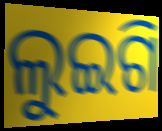
ଲୁଇଗି